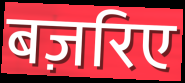
बज़रिए